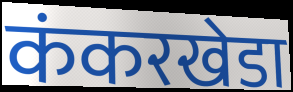
कंकरखेडा